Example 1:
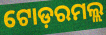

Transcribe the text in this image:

ଟୋଡ଼ରମଲ୍ଲ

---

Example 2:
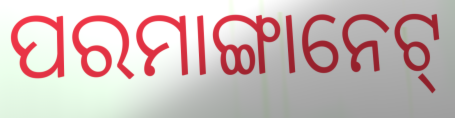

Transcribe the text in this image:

ପରମାଙ୍ଗାନେଟ୍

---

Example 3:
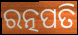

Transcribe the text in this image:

ରତ୍ନପତି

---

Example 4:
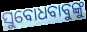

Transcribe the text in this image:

ସୁବୋଧବାବୁଙ୍କୁ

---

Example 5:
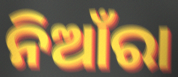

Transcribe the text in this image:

ନିଆଁରା